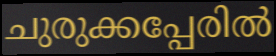
ചുരുക്കപ്പേരിൽ